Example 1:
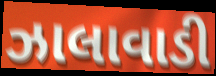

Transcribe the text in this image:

ઝાલાવાડી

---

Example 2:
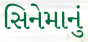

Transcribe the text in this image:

સિનેમાનું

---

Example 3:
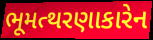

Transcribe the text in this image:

ભૂમત્થરણાકારેન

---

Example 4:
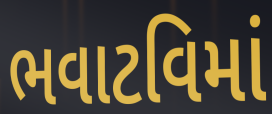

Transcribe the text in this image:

ભવાટવિમાં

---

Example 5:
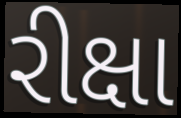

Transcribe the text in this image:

રીક્ષા